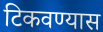
टिकवण्यास